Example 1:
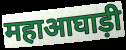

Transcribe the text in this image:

महाआघाड़ी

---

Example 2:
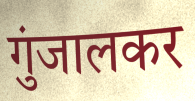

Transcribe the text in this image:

गुंजालकर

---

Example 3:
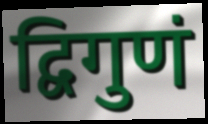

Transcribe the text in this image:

द्विगुणं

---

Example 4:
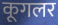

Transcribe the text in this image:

कूगलर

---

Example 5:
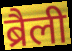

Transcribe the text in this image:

ब्रैली